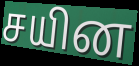
சயின